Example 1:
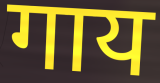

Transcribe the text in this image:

गाय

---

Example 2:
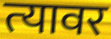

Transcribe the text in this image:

त्‍यावर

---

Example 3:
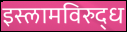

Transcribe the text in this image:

इस्लामविरुद्ध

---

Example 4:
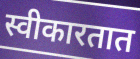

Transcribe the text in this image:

स्वीकारतात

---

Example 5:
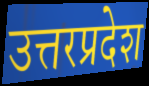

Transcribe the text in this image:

उत्तरप्रदेश